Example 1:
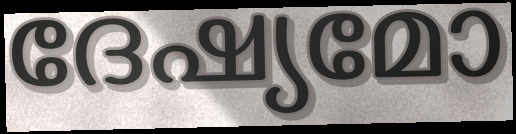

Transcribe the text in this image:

ദേഷ്യമോ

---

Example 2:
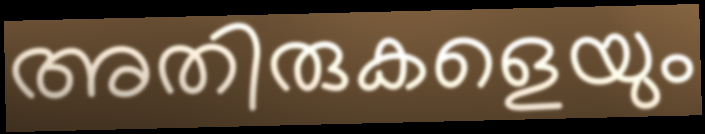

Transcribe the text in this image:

അതിരുകളെയും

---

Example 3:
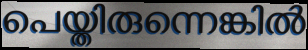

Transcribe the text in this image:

പെയ്തിരുന്നെങ്കിൽ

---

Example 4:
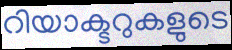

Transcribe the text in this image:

റിയാക്ടറുകളുടെ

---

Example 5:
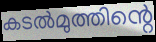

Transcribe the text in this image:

കടൽമുത്തിന്റെ